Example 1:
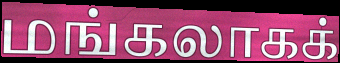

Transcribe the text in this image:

மங்கலாகக்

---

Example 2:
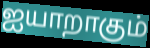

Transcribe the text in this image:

ஐயாறாகும்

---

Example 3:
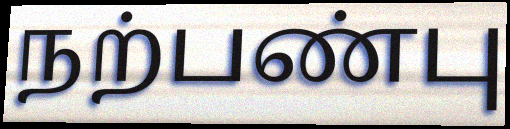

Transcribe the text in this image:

நற்பண்பு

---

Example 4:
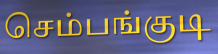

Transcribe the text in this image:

செம்பங்குடி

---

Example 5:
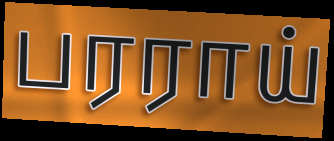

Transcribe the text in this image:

பரராய்